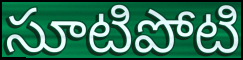
సూటిపోటి